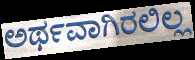
ಅರ್ಥವಾಗಿರಲಿಲ್ಲ